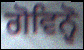
ਗੋਵਿਨ੍ਦੋ